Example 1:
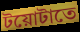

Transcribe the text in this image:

টয়োটাতে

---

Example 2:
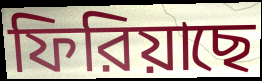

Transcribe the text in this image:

ফিরিয়াছে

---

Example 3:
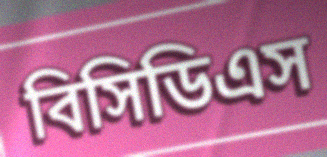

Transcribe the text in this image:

বিসিডিএস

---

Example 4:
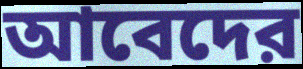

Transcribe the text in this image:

আবেদের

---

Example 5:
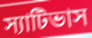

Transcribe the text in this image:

স্যাটিভাস